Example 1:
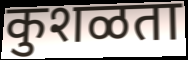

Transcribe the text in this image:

कुशळता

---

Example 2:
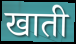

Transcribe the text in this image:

खाती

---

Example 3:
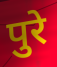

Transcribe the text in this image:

पुरे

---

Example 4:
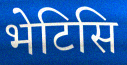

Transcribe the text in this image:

भेटिसि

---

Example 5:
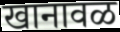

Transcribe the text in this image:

खानावळ